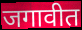
जगावीत